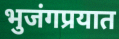
भुजंगप्रयात